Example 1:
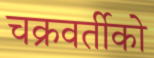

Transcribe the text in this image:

चक्रवर्तीको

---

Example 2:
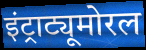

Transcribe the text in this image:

इंट्राट्यूमोरल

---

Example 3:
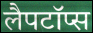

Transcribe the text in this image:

लैपटॉप्‍स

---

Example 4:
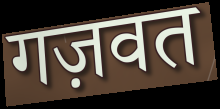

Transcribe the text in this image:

गज़वत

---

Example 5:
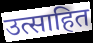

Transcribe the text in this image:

उत्साहित